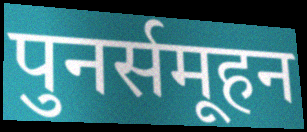
पुनर्समूहन